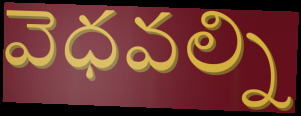
వెధవల్ని